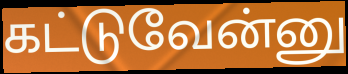
கட்டுவேன்னு